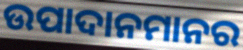
ଉପାଦାନମାନର